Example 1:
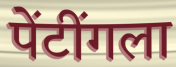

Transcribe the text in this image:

पेंटींगला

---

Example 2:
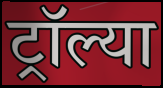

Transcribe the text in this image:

ट्रॉल्या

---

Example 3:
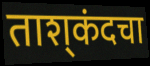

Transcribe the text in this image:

ताश्कंदचा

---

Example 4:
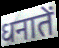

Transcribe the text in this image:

धनातें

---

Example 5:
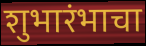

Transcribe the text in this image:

शुभारंभाचा